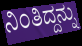
ನಿಂತಿದ್ದನ್ನು